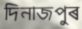
দিনাজপুৰ